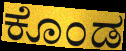
ಕೊಂಡ